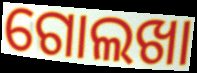
ଗୋଲଖା